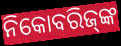
ନିକୋବରିଜ୍‍ଙ୍କ